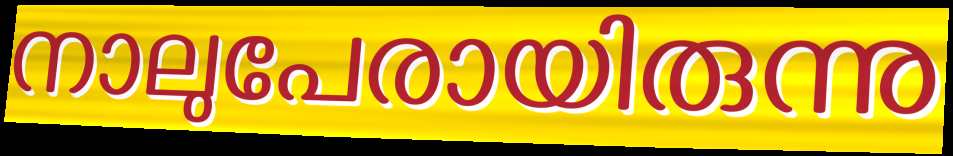
നാലുപേരായിരുന്നു